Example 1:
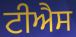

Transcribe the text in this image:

ਟੀਐਸ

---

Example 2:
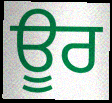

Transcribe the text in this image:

ਊਰ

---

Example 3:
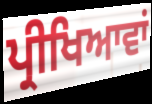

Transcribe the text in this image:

ਪ੍ਰੀਖਿਆਵਾਂ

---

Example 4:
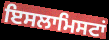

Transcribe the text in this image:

ਇਸਲਾਮਿਸਟਾਂ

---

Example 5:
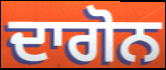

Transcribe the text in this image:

ਦਾਗੋਨ